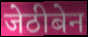
जेठीबेन